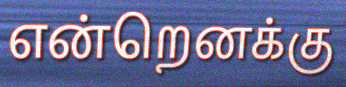
என்றெனக்கு